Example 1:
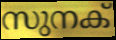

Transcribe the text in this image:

സുനക്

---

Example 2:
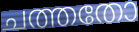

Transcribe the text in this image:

ചത്തതോ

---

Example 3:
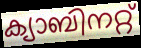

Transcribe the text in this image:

ക്യാബിനറ്റ്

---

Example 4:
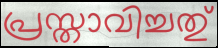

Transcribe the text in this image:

പ്രസ്താവിച്ചതു്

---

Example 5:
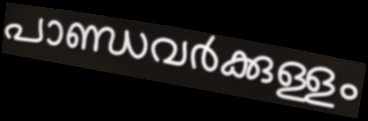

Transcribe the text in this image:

പാണ്ഡവർക്കുള്ളം